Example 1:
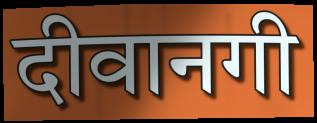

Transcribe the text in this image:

दीवानगी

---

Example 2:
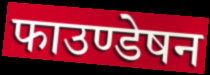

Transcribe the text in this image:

फाउण्डेषन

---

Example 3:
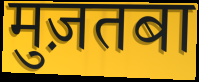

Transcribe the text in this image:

मुज़तबा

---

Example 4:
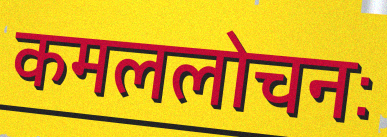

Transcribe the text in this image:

कमललोचनः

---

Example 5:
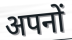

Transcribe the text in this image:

अपनों